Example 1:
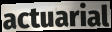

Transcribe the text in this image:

actuarial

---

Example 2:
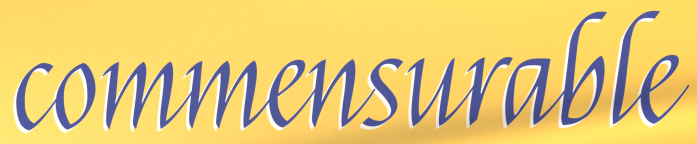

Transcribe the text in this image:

commensurable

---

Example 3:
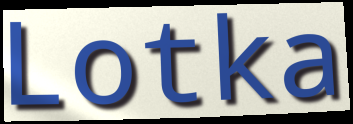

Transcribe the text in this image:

Lotka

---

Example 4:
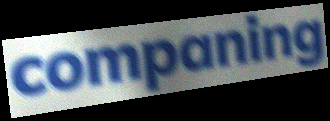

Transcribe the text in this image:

companing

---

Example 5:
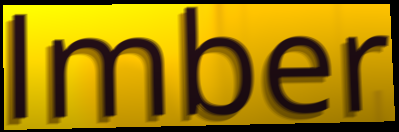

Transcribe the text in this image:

Imber